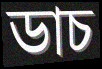
ডাচ